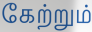
கேற்றும்